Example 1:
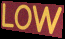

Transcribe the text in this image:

LOW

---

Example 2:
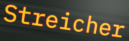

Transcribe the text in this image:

Streicher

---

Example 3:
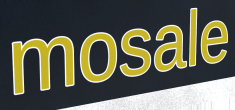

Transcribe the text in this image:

mosale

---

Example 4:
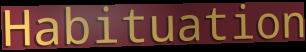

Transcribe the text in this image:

Habituation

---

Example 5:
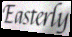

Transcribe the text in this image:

Easterly